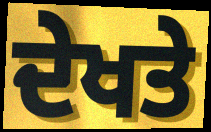
ਦੇਖਤੇ